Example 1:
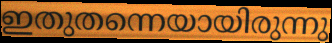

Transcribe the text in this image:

ഇതുതന്നെയായിരുന്നു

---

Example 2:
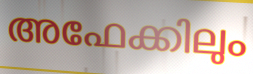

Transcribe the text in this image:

അഫേക്കിലും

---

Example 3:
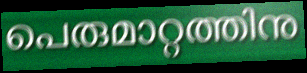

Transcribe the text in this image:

പെരുമാറ്റത്തിനു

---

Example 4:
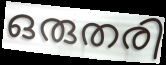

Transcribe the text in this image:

ഒരുതരി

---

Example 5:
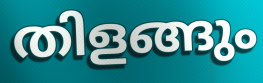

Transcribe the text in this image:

തിളങ്ങും